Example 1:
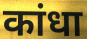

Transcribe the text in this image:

कांधा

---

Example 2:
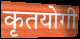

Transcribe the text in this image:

कृतयोगी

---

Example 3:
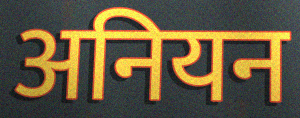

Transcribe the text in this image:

अनियन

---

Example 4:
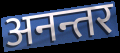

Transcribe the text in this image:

अनन्तर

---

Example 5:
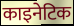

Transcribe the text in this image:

काइनेटिक